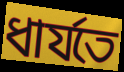
ধার্যতে